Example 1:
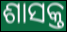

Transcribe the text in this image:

ଶାସକ୍ତ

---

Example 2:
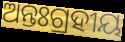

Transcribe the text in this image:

ଅନ୍ତଃଗ୍ରହୀୟ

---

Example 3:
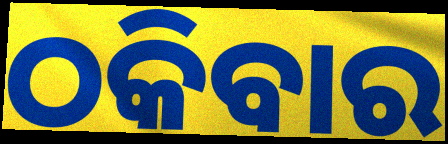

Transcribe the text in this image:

ଠକିବାର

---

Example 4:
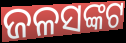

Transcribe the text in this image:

ଜଳସଙ୍କଟ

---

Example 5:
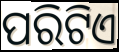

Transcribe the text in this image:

ପରିଟିଏ